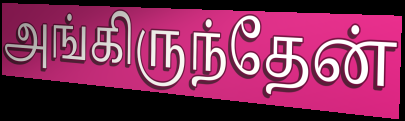
அங்கிருந்தேன்